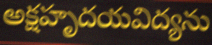
అక్షహృదయవిద్యను